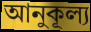
আনুকূল্য